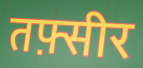
तफ़्सीर